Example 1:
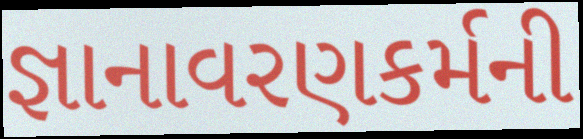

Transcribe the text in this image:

જ્ઞાનાવરણકર્મની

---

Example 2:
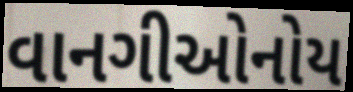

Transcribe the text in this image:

વાનગીઓનોય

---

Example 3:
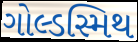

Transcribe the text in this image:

ગોલ્ડસ્મિથ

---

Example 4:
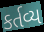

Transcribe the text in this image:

કર્તવ્ય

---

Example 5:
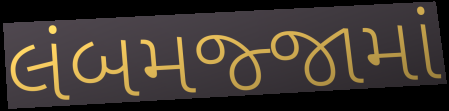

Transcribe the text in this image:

લંબમજ્જામાં